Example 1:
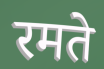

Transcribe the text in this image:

रमते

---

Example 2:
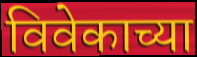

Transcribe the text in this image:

विवेकाच्या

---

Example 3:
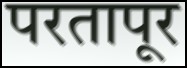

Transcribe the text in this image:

परतापूर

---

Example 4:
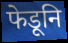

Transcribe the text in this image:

फेडूनि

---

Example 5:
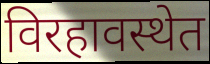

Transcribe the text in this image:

विरहावस्थेत